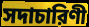
সদাচারিণী